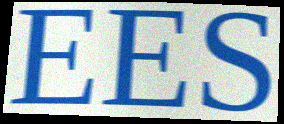
EES